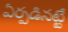
ఏర్పడినట్టే